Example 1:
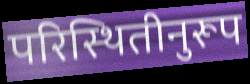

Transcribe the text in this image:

परिस्थितीनुरूप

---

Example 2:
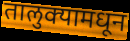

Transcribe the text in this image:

तालुक्यामधून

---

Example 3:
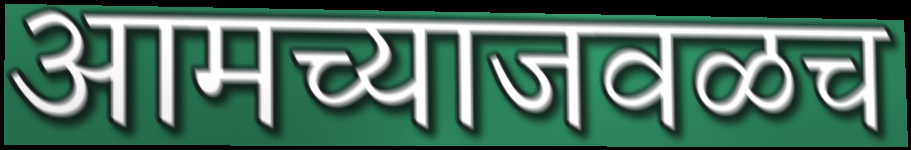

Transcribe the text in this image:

आमच्याजवळच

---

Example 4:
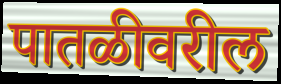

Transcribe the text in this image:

पातळीवरील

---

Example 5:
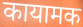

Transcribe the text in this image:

कायामक